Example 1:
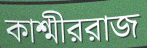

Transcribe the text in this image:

কাশ্মীররাজ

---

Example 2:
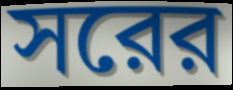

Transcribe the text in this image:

সরের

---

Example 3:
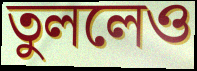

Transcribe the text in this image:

তুললেও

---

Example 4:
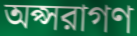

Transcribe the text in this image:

অপ্সরাগণ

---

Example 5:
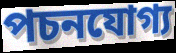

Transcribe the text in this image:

পচনযোগ্য